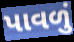
પાવળું